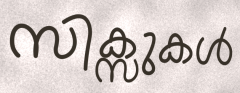
സിക്സുകൾ